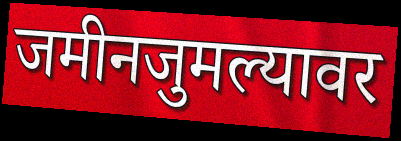
जमीनजुमल्यावर